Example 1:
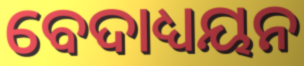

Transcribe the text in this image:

ବେଦାଧ୍ୟୟନ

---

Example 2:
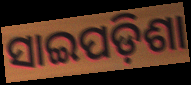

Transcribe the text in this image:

ସାଇପଡ଼ିଶା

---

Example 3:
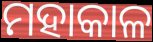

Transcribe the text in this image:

ମହାକାଳ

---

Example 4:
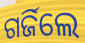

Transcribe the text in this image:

ଗର୍ଜିଲେ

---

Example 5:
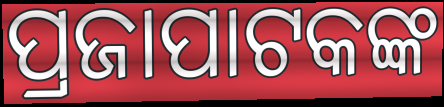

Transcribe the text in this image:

ପ୍ରଜାପାଟକଙ୍କ